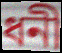
ধনী